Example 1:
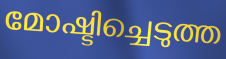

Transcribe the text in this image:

മോഷ്ടിച്ചെടുത്ത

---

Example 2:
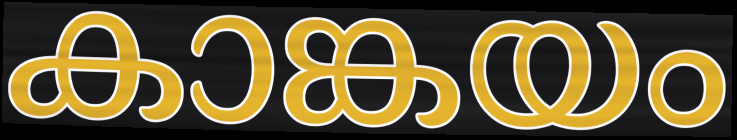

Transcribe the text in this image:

കാങ്കയം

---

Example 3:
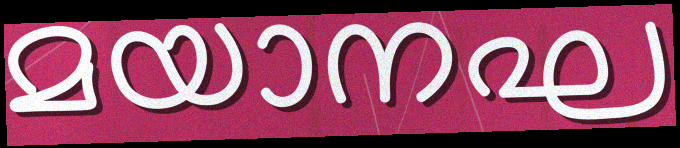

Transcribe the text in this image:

മയാനഘ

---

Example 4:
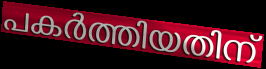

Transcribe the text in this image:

പകർത്തിയതിന്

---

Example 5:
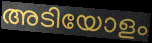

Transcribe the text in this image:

അടിയോളം